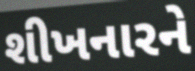
શીખનારને